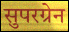
सुपरग्रेन